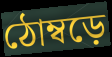
ঠোম্বড়ে